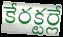
కేరక్టర్లే